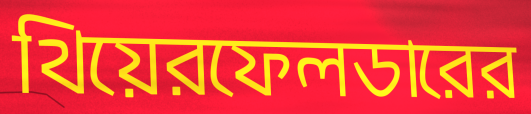
থিয়েরফেলডারের